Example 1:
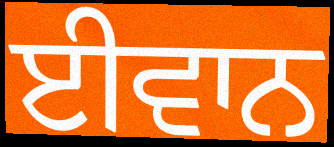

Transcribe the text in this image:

ਈਵਾਨ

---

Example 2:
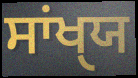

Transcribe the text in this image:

ਸਾਂਖੑਯ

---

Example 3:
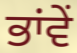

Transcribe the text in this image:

ਭਾਂਵੇਂ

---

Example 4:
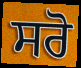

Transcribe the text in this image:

ਸਰੋ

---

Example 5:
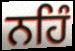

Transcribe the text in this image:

ਨਹਿੰ